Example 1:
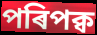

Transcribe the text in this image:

পৰিপক্ব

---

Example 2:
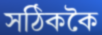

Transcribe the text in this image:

সঠিককৈ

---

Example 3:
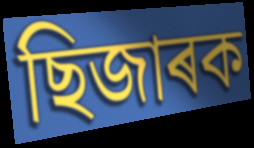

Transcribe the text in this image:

ছিজাৰক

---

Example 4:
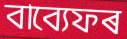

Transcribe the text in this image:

বাব্যেফৰ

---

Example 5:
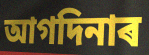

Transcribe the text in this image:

আগদিনাৰ